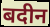
बदीन